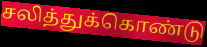
சலித்துக்கொண்டு